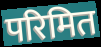
परिमित